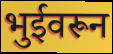
भुईवरून